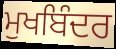
ਮੁਖਬਿੰਦਰ